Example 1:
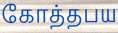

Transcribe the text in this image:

கோத்தபய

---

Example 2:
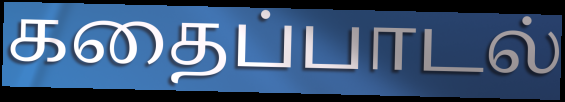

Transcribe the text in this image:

கதைப்பாடல்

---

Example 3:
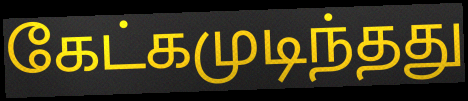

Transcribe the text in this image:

கேட்கமுடிந்தது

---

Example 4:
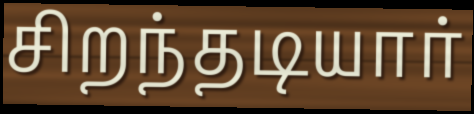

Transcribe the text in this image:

சிறந்தடியார்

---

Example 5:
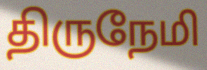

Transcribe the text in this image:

திருநேமி